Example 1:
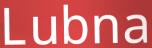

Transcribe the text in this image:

Lubna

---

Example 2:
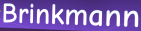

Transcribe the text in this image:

Brinkmann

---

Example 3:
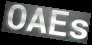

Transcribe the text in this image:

OAEs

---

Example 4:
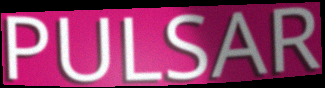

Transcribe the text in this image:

PULSAR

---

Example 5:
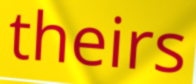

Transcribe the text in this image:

theirs